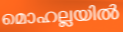
മൊഹല്ലയിൽ